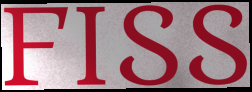
FISS